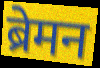
ब्रेमन